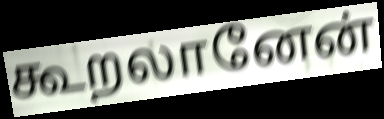
கூறலானேன்